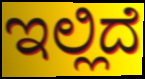
ಇಲ್ಲಿದೆ